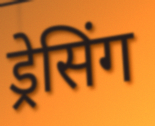
ड्रेसिंग